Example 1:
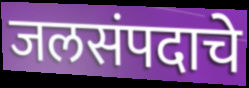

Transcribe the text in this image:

जलसंपदाचे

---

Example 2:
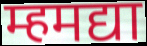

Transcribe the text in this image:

म्हमद्या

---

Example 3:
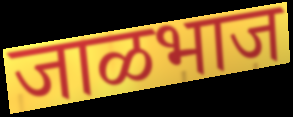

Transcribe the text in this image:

जाळभाज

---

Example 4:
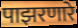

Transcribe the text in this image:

पाझरणारे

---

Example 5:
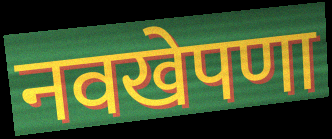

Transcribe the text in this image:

नवखेपणा